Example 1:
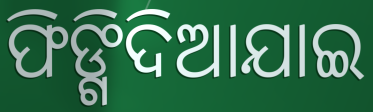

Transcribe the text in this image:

ଫିଙ୍ଗିଦିଆଯାଇ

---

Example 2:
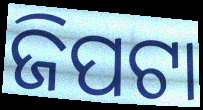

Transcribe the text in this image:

ଜିପଟା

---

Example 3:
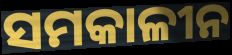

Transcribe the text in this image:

ସମକାଳୀନ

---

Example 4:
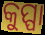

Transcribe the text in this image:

କୁପ୍ପା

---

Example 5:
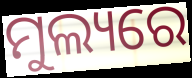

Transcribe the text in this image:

ମୁଲ୍ୟରେ